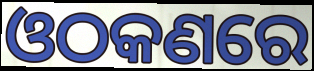
ଓଠକଣରେ